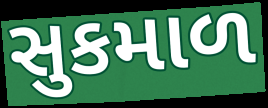
સુકમાળ